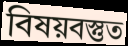
বিষয়বস্তুত